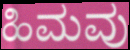
ಹಿಮವು